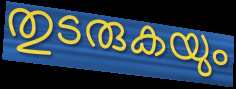
തുടരുകയും